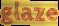
glaze